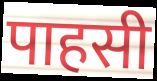
पाहसी